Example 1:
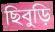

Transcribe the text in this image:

ছিবুড়ি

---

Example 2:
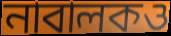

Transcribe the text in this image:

নাবালকও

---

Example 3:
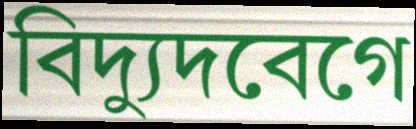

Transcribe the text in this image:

বিদ্যুদবেগে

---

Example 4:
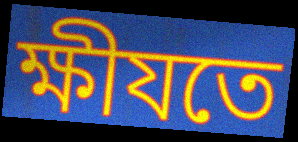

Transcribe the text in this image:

ক্ষীযতে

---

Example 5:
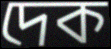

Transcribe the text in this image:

দেক